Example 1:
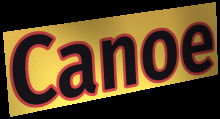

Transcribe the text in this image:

Canoe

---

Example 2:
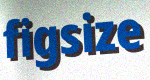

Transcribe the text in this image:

figsize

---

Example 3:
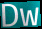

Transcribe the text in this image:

Dw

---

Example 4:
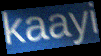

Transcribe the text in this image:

kaayi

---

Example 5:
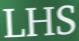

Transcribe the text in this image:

LHS